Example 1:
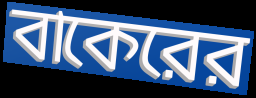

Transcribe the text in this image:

বাকেরের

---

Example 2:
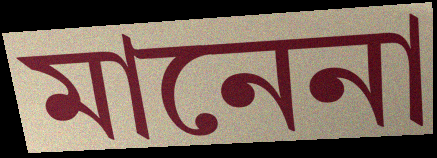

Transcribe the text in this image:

মানেনা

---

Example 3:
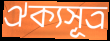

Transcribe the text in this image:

ঐক্যসূত্র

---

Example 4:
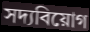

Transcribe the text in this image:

সদ্যবিয়োগ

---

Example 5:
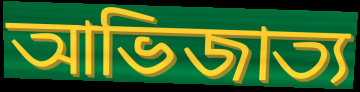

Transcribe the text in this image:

আভিজাত্য